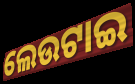
ଲେଉଟାଇ